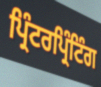
ਪ੍ਰਿੰਟਰਪ੍ਰਿੰਟਿੰਗ